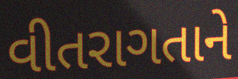
વીતરાગતાને